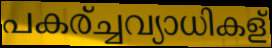
പകര്ച്ചവ്യാധികള്